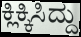
ಕ್ಲಿಕ್ಕಿಸಿದ್ದು